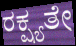
ರಕ್ಷ್ಯತೇ